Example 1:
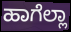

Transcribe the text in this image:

ಹಾಗೆಲ್ಲಾ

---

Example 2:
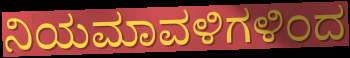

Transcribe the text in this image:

ನಿಯಮಾವಳಿಗಳಿಂದ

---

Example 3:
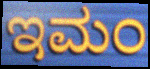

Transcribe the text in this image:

ಇಮಂ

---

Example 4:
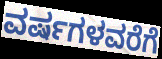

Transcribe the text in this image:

ವರ್ಷಗಳವರೆಗೆ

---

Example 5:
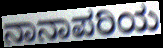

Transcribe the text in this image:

ನಾನಾಪರಿಯ